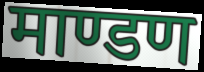
माण्डण